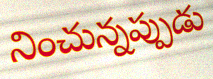
నించున్నప్పుడు